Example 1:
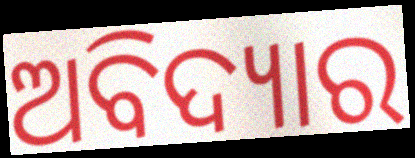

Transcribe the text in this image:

ଅବିଦ୍ୟାର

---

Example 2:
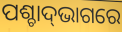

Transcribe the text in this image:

ପଶ୍ଚାଦ୍‍ଭାଗରେ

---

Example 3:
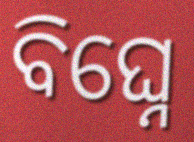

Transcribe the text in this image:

ବିଘ୍ନେ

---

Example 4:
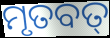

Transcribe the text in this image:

ମୃତବତ୍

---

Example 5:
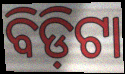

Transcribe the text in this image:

ବିଡ଼ିଟା